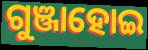
ଗୁଞ୍ଜାହୋଇ